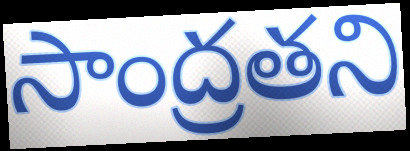
సాంద్రతని